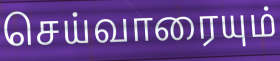
செய்வாரையும்